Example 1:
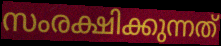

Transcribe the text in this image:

സംരക്ഷിക്കുന്നത്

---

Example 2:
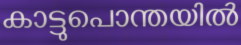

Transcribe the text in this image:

കാട്ടുപൊന്തയിൽ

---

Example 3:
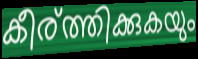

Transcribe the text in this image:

കീര്ത്തിക്കുകയും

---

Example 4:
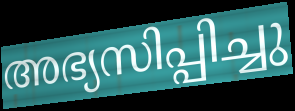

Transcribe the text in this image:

അഭ്യസിപ്പിച്ചു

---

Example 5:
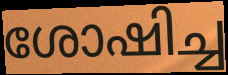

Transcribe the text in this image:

ശോഷിച്ച